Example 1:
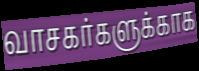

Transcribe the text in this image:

வாசகர்களுக்காக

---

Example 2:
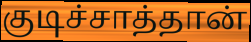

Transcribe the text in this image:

குடிச்சாத்தான்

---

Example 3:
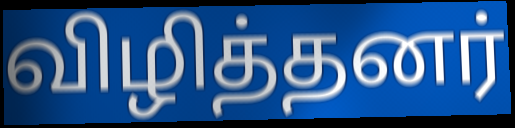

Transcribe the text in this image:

விழித்தனர்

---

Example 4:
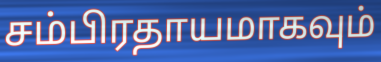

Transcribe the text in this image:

சம்பிரதாயமாகவும்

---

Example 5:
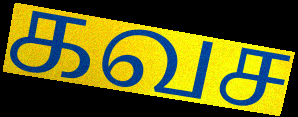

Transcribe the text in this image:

கவச